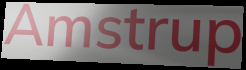
Amstrup